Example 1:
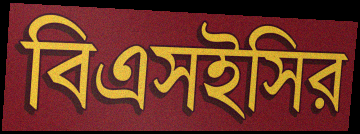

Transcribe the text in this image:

বিএসইসির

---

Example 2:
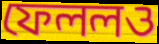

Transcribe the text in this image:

ফেললও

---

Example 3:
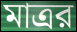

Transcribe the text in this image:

মাত্রর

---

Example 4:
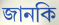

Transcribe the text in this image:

জানকি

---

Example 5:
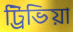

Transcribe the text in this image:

ট্রিভিয়া